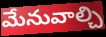
మేనువాల్చి